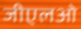
जीएलओ